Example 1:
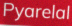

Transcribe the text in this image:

Pyarelal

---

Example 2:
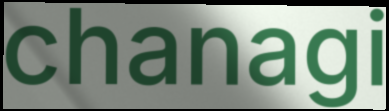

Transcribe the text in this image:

chanagi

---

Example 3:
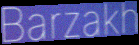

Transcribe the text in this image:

Barzakh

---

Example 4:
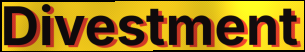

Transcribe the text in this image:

Divestment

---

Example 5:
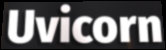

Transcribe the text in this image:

Uvicorn